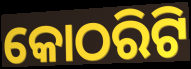
କୋଠରିଟି